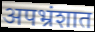
अपभ्रंशात